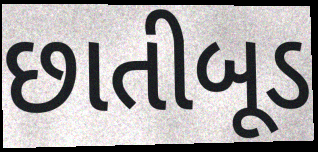
છાતીબૂડ